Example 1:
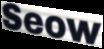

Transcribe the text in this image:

Seow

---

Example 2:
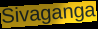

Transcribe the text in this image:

Sivaganga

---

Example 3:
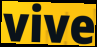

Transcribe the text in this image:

vive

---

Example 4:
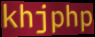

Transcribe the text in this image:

khjphp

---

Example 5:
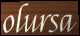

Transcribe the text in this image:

olursa